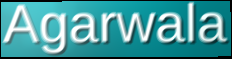
Agarwala